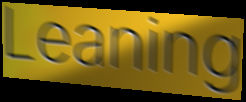
Leaning